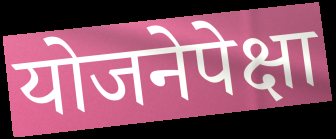
योजनेपेक्षा